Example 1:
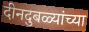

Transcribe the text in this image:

दीनदुबळ्यांच्या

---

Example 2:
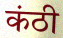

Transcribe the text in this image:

कंठी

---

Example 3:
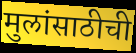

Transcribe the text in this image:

मुलांसाठीची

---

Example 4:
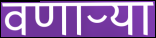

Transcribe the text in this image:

वणाऱ्या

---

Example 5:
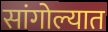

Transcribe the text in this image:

सांगोल्यात